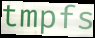
tmpfs